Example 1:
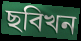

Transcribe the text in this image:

ছবিখন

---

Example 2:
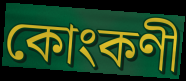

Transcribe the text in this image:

কোংকণী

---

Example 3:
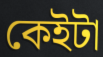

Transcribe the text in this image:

কেইটা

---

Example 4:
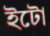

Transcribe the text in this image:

ইটো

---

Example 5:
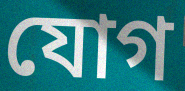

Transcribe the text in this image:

যোগ